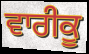
ਵਾਰੀਕੂ